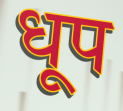
धूप